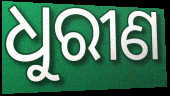
ଧୁରୀଣ